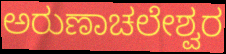
ಅರುಣಾಚಲೇಶ್ವರ